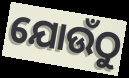
ଯୋଉଁଠୁ